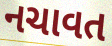
નચાવત